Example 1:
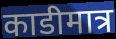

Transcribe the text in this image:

काडीमात्र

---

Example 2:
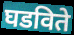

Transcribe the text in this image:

घडविते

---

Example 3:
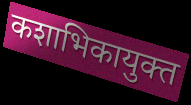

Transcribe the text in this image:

कशाभिकायुक्त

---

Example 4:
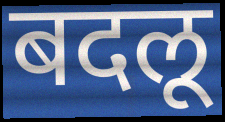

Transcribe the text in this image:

बदलू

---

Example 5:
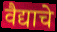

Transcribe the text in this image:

वैद्याचे